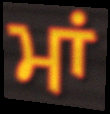
ਮਾਂ